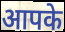
आपके